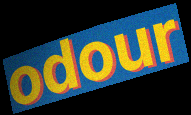
odour